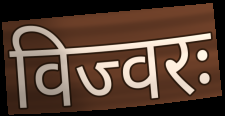
विज्वरः